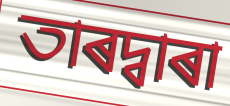
তাৰদ্বাৰা